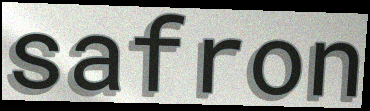
safron